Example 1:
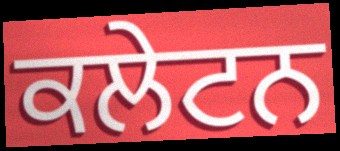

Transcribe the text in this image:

ਕਲੇਟਨ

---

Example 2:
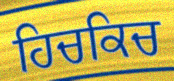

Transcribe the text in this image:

ਹਿਚਕਿਚ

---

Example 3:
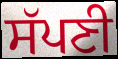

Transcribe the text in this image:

ਸੱਪਣੀ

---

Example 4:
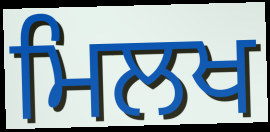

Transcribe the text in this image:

ਮਿਲਖ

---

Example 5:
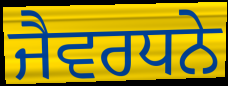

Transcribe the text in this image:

ਜੈਵਰਧਨੇ